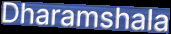
Dharamshala